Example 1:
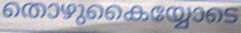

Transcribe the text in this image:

തൊഴുകൈയ്യോടെ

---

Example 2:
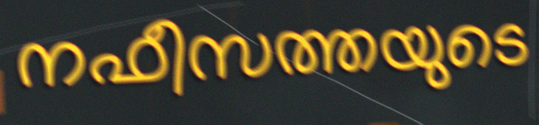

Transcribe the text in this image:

നഫീസത്തയുടെ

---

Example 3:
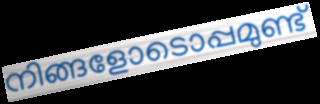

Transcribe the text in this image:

നിങ്ങളോടൊപ്പമുണ്ട്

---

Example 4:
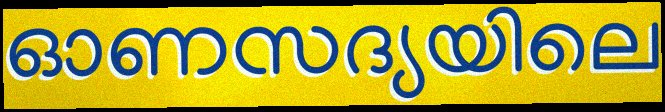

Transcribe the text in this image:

ഓണസദ്യയിലെ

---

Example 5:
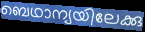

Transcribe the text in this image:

ബെഥാന്യയിലേക്കു